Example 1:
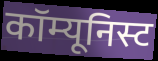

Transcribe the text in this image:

कॉम्यूनिस्ट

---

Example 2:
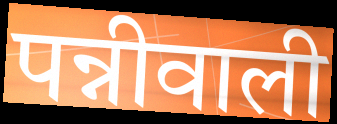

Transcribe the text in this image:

पन्नीवाली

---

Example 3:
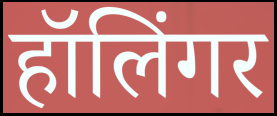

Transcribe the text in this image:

हॉलिंगर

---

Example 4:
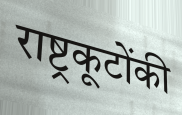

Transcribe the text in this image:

राष्ट्रकूटोंकी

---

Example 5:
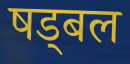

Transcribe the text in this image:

षड्बल